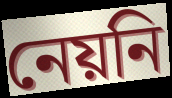
নেয়নি